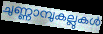
ചുണ്ണാമ്പുകല്ലുകൾ